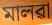
মালৱা